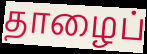
தாழைப்